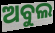
ଅବୁଲ